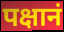
पक्षानं